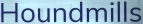
Houndmills